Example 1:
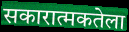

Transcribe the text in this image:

सकारात्मकतेला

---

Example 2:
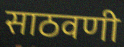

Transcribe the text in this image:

साठवणी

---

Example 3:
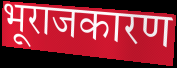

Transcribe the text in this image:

भूराजकारण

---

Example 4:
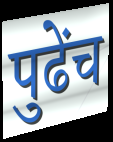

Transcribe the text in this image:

पुढेंच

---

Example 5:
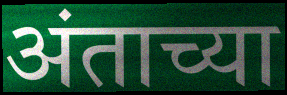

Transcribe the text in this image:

अंताच्या